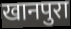
खानपुरा